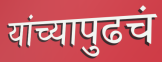
यांच्यापुढचं